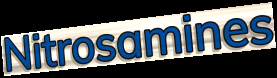
Nitrosamines